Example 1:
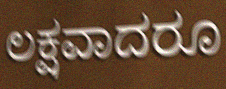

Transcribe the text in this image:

ಲಕ್ಷವಾದರೂ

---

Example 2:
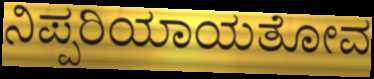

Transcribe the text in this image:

ನಿಪ್ಪರಿಯಾಯತೋವ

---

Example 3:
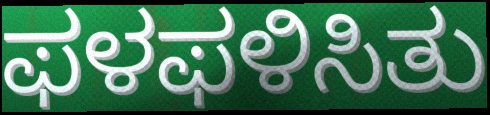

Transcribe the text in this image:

ಫಳಫಳಿಸಿತು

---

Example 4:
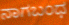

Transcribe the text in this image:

ನಾಗಬಂಧ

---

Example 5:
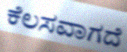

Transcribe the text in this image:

ಕೆಲಸವಾಗದೆ